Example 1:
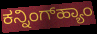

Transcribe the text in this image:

ಕನ್ನಿಂಗ್‌ಹ್ಯಾಂ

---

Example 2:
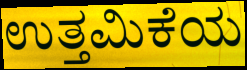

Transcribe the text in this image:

ಉತ್ತಮಿಕೆಯ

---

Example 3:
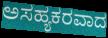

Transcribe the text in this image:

ಅಸಹ್ಯಕರವಾದ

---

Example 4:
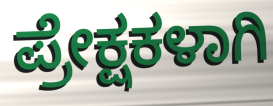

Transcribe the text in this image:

ಪ್ರೇಕ್ಷಕಳಾಗಿ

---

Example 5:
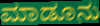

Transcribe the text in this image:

ಮಾಡೂನು